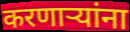
करणाऱ्यांना